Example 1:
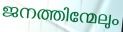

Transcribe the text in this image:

ജനത്തിന്മേലും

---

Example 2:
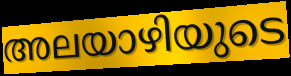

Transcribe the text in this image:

അലയാഴിയുടെ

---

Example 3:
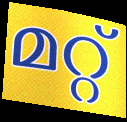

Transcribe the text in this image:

മറ്റ്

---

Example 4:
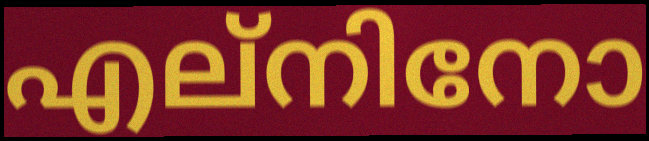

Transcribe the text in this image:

എല്നിനോ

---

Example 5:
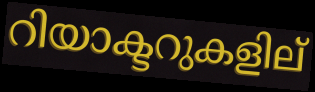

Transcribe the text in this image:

റിയാക്ടറുകളില്